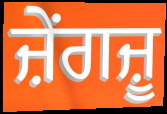
ਜ਼ੇਂਗਜ਼ੂ